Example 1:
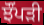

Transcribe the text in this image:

ਝੌਂਪੜੀ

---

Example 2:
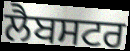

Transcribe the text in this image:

ਲੈਬਸਟਰ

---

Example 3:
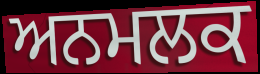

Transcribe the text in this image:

ਅਨਮਲਕ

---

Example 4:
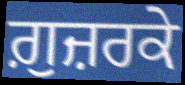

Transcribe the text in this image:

ਗ਼ੁਜ਼ਰਕੇ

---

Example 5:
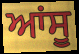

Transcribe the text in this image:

ਆਂਸੂ